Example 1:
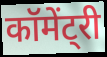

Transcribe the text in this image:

कॉमेंट्री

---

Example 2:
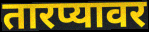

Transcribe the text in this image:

तारप्यावर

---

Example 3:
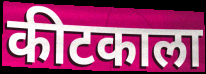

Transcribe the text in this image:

कीटकाला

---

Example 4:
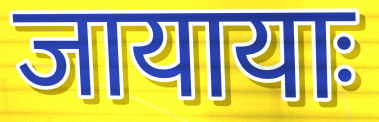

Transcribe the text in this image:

जायायाः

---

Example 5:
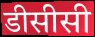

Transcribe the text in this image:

डीसीसी